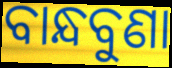
ବାନ୍ଧବୁଣା